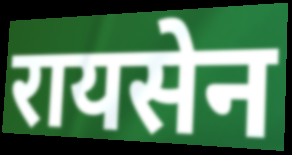
रायसेन